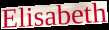
Elisabeth